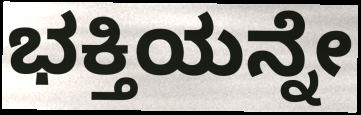
ಭಕ್ತಿಯನ್ನೇ